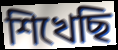
শিখেছি